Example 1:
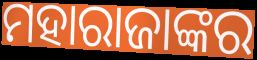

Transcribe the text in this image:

ମହାରାଜାଙ୍କର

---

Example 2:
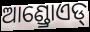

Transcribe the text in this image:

ଆଣ୍ଡ୍ରୋଏଡ୍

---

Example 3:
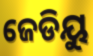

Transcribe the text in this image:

ଜେଡିୟୁ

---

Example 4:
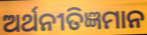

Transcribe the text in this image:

ଅର୍ଥନୀତିଜ୍ଞମାନ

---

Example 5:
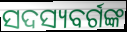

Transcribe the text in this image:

ସଦସ୍ୟବର୍ଗଙ୍କ